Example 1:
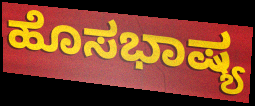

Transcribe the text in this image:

ಹೊಸಭಾಷ್ಯ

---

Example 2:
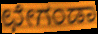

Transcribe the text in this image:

ಛೇಗಂಡಾ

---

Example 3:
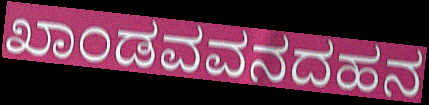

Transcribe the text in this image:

ಖಾಂಡವವನದಹನ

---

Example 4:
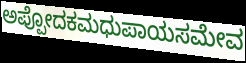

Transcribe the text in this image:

ಅಪ್ಪೋದಕಮಧುಪಾಯಸಮೇವ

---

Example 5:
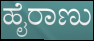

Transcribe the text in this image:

ಹೈರಾಣು